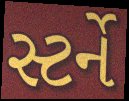
સ્ટર્ને